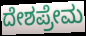
ದೇಶಪ್ರೇಮ